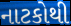
નાટકોથી